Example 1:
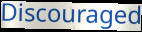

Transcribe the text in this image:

Discouraged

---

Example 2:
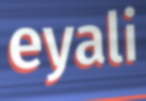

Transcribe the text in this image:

eyali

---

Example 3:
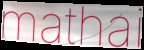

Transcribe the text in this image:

mathai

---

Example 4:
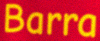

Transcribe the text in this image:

Barra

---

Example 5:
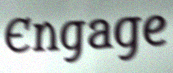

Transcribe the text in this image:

Engage